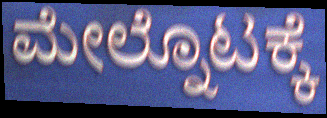
ಮೇಲ್ನೊಟಕ್ಕೆ